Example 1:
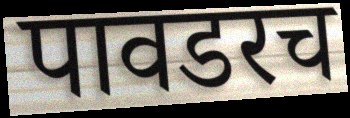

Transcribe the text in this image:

पावडरच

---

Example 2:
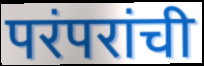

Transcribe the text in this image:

परंपरांची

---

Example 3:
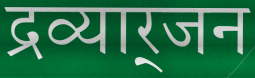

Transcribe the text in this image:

द्रव्यार्जन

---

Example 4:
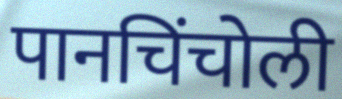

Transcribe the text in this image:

पानचिंचोली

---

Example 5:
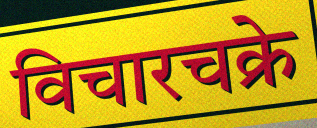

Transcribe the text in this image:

विचारचक्रे